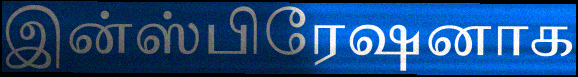
இன்ஸ்பிரேஷனாக